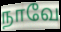
நாவே